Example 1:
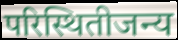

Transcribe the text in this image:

परिस्थितीजन्य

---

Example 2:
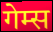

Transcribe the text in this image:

गेम्स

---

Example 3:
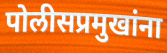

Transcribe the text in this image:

पोलीसप्रमुखांना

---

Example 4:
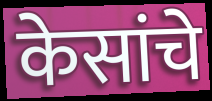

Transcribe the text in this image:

केसांचे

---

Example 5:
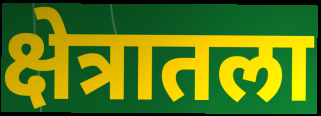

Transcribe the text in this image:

क्षेत्रातला